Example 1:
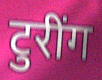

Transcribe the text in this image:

टुरींग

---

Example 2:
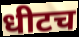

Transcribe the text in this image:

धीटच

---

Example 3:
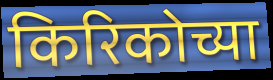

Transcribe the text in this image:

किरिकोच्या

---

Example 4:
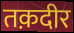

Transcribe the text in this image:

तक़दीर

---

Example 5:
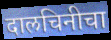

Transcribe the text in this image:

दालचिनीचा